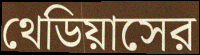
থেডিয়াসের